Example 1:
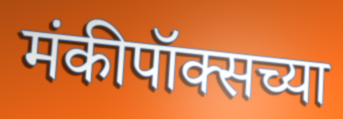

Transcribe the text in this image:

मंकीपॉक्सच्या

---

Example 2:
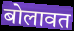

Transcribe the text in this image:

बोलावत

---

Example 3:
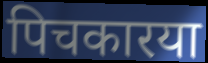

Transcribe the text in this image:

पिचकारया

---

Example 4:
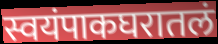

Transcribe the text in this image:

स्वयंपाकघरातलं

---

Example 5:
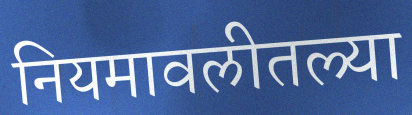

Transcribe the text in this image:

नियमावलीतल्या